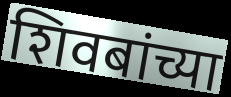
शिवबांच्या